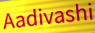
Aadivashi